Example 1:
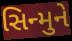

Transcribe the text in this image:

સિન્મુને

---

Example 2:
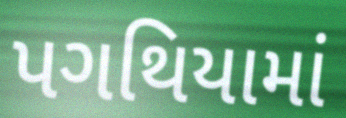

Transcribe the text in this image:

પગથિયામાં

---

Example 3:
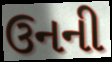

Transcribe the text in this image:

ઉનની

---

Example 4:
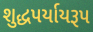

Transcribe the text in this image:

શુદ્ધપર્યાયરૂપ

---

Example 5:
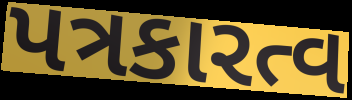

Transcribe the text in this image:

પત્રકારત્વ